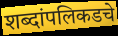
शब्दांपलिकडचे